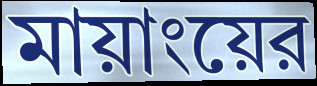
মায়াংয়ের